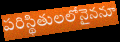
పరిస్థితులలోనైననూ